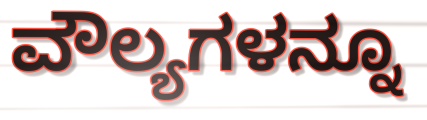
ವೌಲ್ಯಗಳನ್ನೂ